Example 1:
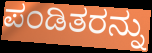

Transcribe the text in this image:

ಪಂಡಿತರನ್ನು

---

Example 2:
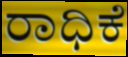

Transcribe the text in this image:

ರಾಧಿಕೆ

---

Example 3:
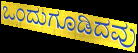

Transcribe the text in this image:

ಒಂದುಗೂಡಿದವು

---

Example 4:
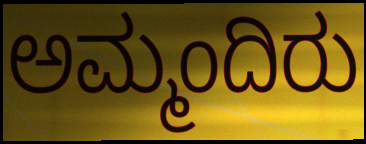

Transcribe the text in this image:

ಅಮ್ಮಂದಿರು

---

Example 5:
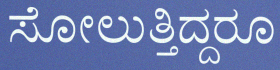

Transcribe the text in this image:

ಸೋಲುತ್ತಿದ್ದರೂ